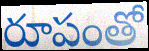
రూపంతో